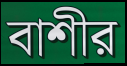
বাশীর